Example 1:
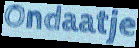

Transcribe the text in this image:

Ondaatje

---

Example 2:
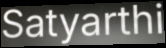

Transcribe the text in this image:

Satyarthi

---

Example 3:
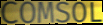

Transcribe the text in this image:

COMSOL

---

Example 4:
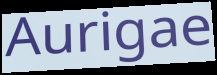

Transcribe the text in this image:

Aurigae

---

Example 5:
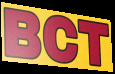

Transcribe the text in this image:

BCT